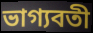
ভাগ্যবতী